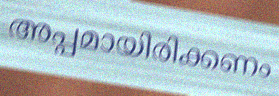
അപ്പമായിരിക്കണം